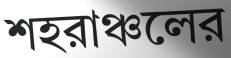
শহরাঞ্চলের